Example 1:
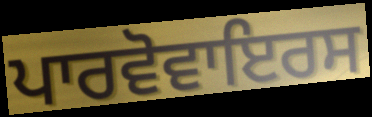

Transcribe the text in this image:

ਪਾਰਵੋਵਾਇਰਸ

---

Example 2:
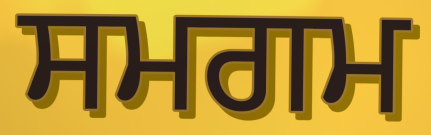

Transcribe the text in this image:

ਸਮਗਮ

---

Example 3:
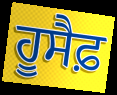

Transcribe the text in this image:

ਹੂਸੈਫ਼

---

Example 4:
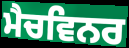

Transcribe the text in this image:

ਮੈਚਵਿਨਰ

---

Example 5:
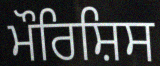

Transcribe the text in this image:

ਮੌਰਿਸ਼ਿਸ